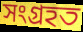
সংগ্ৰহত